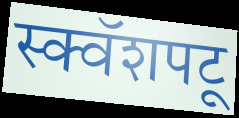
स्क्वॅशपटू